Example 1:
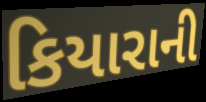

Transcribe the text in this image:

કિયારાની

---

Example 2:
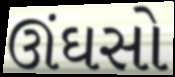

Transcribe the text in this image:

ઊંઘસો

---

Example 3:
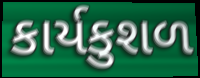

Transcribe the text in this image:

કાર્યકુશળ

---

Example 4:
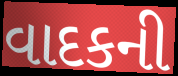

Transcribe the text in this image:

વાદકની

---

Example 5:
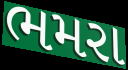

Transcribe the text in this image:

ભમરા